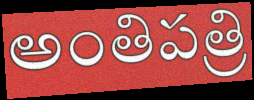
అంతిపత్రి